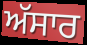
ਅੱਸਾਰ